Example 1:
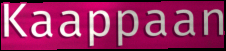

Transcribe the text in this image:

Kaappaan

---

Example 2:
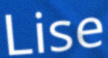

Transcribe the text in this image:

Lise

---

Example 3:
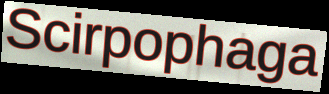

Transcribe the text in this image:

Scirpophaga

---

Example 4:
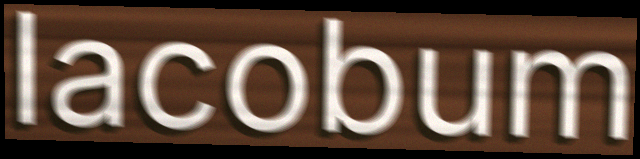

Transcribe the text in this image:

Iacobum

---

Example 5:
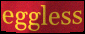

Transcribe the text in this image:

eggless